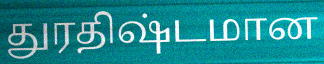
துரதிஷ்டமான